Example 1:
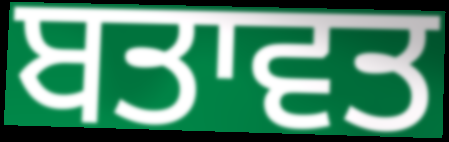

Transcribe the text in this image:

ਬਤਾਵਤ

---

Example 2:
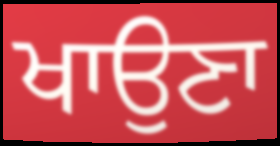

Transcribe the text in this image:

ਖਾਉਣਾ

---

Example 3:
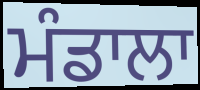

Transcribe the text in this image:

ਮੰਡਾਲਾ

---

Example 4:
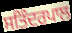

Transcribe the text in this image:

ਸਤਿੰਦਰਪਾਲ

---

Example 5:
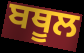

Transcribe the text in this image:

ਬਥੂਲ